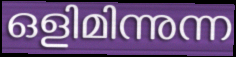
ഒളിമിന്നുന്ന